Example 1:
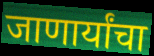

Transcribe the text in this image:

जाणार्यांचा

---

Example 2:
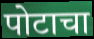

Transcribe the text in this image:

पोटाचा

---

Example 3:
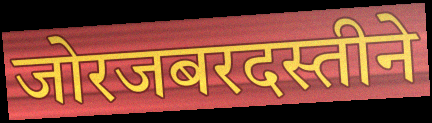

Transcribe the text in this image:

जोरजबरदस्तीने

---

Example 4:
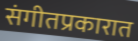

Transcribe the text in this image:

संगीतप्रकारात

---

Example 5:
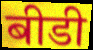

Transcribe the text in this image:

बीडी